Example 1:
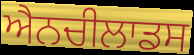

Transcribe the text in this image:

ਐਨਚੀਲਾਡਸ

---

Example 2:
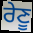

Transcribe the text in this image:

ਰੇਣੂ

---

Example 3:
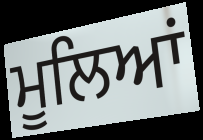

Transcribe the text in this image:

ਮੂਲਿਆਂ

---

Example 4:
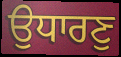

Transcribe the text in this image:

ਉਧਾਰਣੁ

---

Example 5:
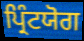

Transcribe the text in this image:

ਪ੍ਰਿੰਟਯੋਗ